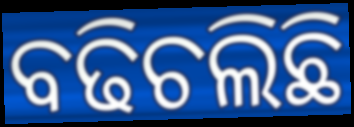
ବଢିଚଲିଛି